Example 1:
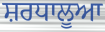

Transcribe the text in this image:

ਸ਼ਰਧਾਲੂਆ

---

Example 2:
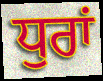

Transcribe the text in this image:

ਧੁਰਾਂ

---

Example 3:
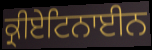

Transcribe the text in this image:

ਕ੍ਰੀਏਟਿਨਾਈਨ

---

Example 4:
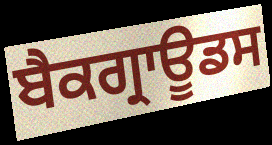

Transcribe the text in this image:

ਬੈਕਗ੍ਰਾਊਡਸ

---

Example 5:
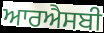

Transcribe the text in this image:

ਆਰਐਸਬੀ